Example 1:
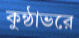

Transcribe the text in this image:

কুন্ঠাভরে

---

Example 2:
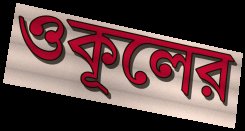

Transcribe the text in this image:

ওকূলের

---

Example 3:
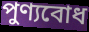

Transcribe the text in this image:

পুণ্যবোধ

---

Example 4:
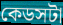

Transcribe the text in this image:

কেডসটা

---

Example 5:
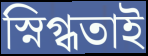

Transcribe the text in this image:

স্নিগ্ধতাই